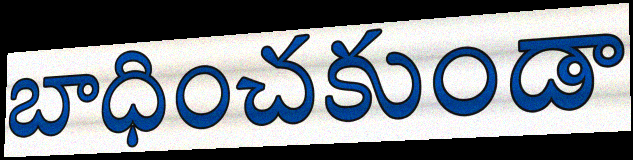
బాధించకుండా